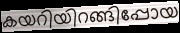
കയറിയിറങ്ങിപ്പോയ